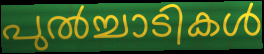
പുൽച്ചാടികൾ